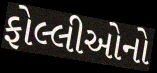
ફોલ્લીઓનો